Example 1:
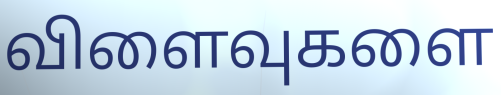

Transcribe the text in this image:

விளைவுகளை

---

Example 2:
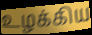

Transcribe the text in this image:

உழக்கிய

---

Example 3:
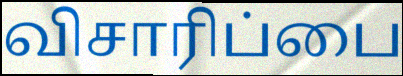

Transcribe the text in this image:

விசாரிப்பை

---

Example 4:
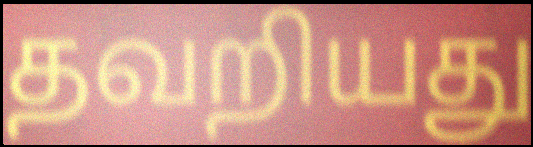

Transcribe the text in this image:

தவறியது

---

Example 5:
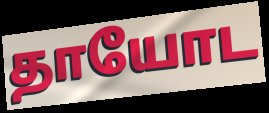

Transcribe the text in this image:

தாயோட